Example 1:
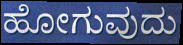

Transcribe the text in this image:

ಹೋಗುವುದು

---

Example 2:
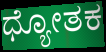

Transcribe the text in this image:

ಧ್ಯೋತಕ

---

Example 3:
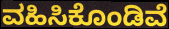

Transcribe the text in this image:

ವಹಿಸಿಕೊಂಡಿವೆ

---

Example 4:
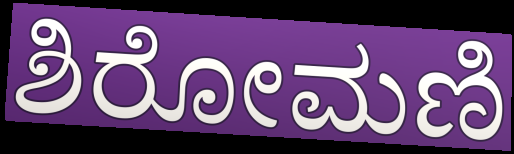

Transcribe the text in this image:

ಶಿರೋಮಣಿ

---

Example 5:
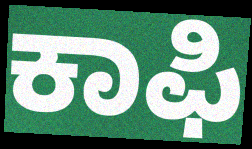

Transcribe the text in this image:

ಕಾಫಿ